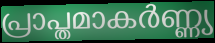
പ്രാപ്തമാകർണ്ണ്യ